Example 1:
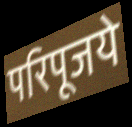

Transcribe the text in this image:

परिपूजये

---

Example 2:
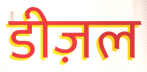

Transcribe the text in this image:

डीज़ल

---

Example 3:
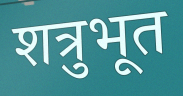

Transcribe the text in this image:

शत्रुभूत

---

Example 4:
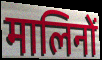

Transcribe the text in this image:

मालिनों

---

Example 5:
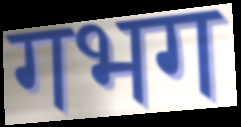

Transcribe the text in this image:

गभग